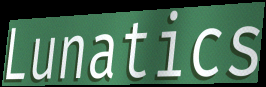
Lunatics